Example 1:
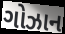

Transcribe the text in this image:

ગોઝાન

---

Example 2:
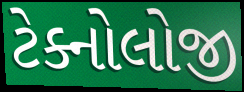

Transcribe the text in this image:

ટેક્નોલોજી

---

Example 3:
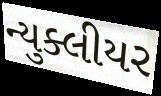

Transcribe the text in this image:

ન્યુક્લીયર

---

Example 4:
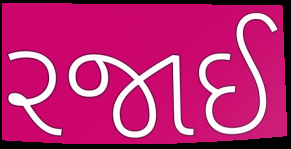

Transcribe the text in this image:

રજાઈ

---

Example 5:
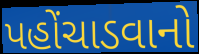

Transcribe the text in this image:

પહોંચાડવાનો